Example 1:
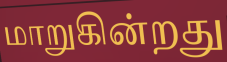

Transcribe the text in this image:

மாறுகின்றது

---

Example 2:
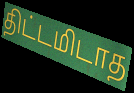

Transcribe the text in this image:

திட்டமிடாத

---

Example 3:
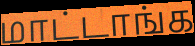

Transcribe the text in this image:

மாட்டாங்க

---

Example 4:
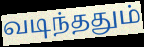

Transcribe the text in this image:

வடிந்ததும்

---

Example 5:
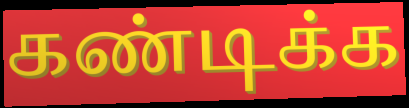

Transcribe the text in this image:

கண்டிக்க